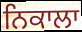
ਨਿਕਾਲਾ